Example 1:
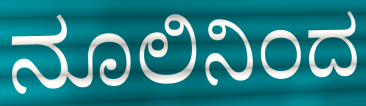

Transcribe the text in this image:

ನೂಲಿನಿಂದ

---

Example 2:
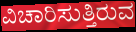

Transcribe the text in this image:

ವಿಚಾರಿಸುತ್ತಿರುವ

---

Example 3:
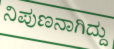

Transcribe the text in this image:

ನಿಪುಣನಾಗಿದ್ದು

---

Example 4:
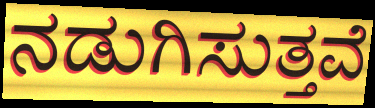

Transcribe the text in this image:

ನಡುಗಿಸುತ್ತವೆ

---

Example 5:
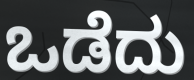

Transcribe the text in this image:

ಒಡೆದು